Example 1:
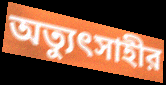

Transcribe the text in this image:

অত্যুৎসাহীর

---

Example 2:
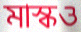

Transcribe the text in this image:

মাস্কও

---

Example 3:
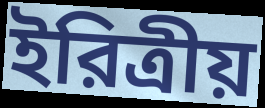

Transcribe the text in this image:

ইরিত্রীয়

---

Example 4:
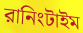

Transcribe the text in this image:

রানিংটাইম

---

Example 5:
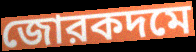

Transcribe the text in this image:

জোরকদমে